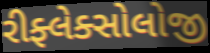
રીફ્લેક્સોલોજી